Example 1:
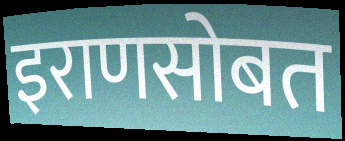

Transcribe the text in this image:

इराणसोबत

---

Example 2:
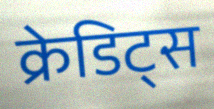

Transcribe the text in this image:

क्रेडिट्स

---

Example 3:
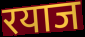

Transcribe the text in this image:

रयाज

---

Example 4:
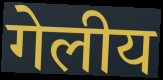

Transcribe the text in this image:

गेलीय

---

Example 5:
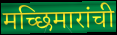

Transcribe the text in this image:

मच्छिमारांची